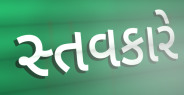
સ્તવકારે